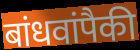
बांधवांपैकी